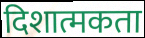
दिशात्मकता